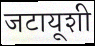
जटायूशी